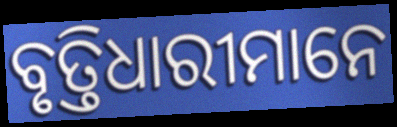
ବୃତ୍ତିଧାରୀମାନେ